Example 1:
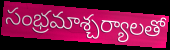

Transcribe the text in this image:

సంభ్రమాశ్చర్యాలతో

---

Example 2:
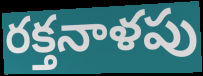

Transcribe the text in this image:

రక్తనాళపు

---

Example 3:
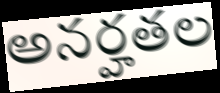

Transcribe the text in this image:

అనర్హతల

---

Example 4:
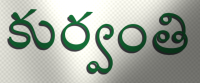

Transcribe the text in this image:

కుర్వంతి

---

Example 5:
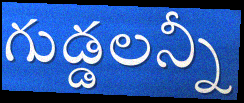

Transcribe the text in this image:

గుడ్డలన్నీ